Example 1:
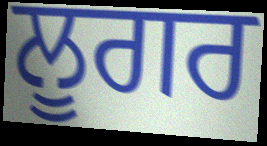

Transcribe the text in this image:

ਲੂਗਰ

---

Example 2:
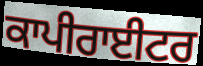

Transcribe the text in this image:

ਕਾਪੀਰਾਈਟਰ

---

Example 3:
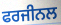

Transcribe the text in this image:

ਫਰਜੀਨਲ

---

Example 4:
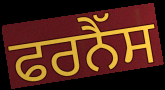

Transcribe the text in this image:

ਫਰਨੈੱਸ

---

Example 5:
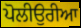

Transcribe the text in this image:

ਪੋਲੀਉਰੀਆ